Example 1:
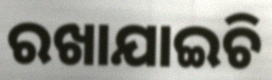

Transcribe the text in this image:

ରଖାଯାଇଚି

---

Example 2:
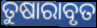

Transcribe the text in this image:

ତୁଷାରାବୃତ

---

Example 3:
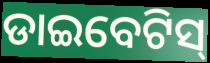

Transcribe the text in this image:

ଡାଇବେଟିସ୍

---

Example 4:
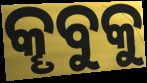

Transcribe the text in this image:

କୄବୁକୁ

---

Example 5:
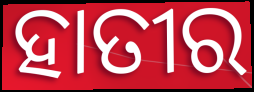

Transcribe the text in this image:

ହାତୀର